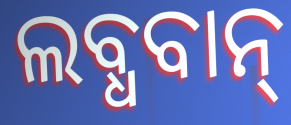
ଲବ୍ଧବାନ୍